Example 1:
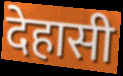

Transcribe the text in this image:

देहासी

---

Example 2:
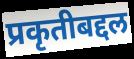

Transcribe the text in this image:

प्रकृतीबद्दल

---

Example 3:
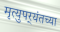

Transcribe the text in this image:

मृत्युपर्यंतच्या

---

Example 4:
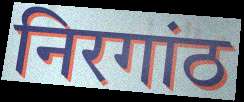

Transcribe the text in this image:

निरगांठ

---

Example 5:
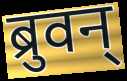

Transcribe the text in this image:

ब्रुवन्